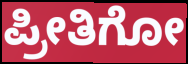
ಪ್ರೀತಿಗೋ